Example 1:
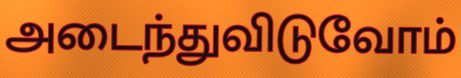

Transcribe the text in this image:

அடைந்துவிடுவோம்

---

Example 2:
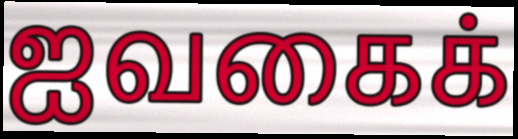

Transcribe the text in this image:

ஐவகைக்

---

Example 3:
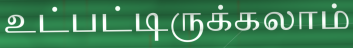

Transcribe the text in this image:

உட்பட்டிருக்கலாம்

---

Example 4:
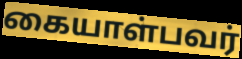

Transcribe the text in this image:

கையாள்பவர்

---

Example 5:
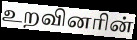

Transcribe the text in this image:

உறவினரின்